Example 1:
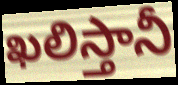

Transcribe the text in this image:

ఖలిస్తానీ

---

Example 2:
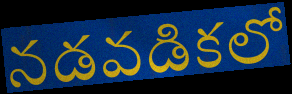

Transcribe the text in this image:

నడవడికలో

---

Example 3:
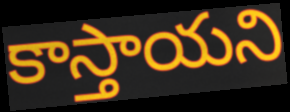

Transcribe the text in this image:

కాస్తాయని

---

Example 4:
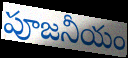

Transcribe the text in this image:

పూజనీయం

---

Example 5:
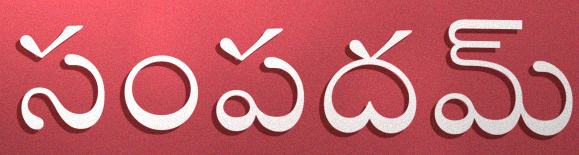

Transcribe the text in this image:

సంపదమ్